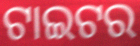
ଟାଇଟର